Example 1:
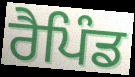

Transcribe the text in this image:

ਰੈਪਿੰਡ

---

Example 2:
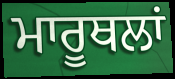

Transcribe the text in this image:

ਮਾਰੂਥਲਾਂ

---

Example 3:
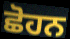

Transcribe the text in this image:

ਛੋਹਨ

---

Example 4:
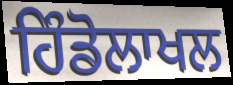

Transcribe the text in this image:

ਹਿੰਡੋਲਾਖਲ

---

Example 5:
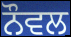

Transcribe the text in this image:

ਨੌਵਲ